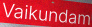
Vaikundam